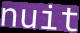
nuit